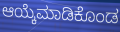
ಆಯ್ಕೆಮಾಡಿಕೊಂಡ